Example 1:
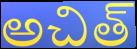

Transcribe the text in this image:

అచిత్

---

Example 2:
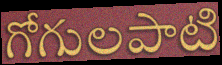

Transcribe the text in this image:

గోగులపాటి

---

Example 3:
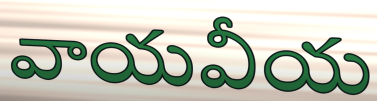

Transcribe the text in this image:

వాయవీయ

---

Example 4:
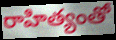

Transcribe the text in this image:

రాహిత్యంతో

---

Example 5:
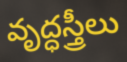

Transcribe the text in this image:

వృద్ధస్త్రీలు